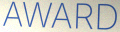
AWARD